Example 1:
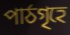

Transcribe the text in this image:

পাঠগৃহে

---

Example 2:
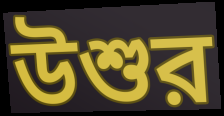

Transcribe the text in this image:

উশুর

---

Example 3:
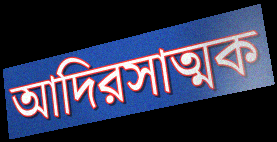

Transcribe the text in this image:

আদিরসাত্মক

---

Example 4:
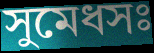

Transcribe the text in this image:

সুমেধসঃ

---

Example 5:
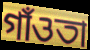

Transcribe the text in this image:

গাঁওতা